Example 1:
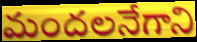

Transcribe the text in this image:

మందలనేగాని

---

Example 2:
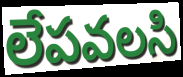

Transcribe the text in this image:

లేపవలసి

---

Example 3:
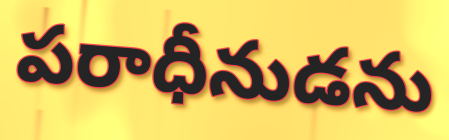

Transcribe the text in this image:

పరాధీనుడను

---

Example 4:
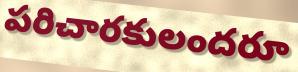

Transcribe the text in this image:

పరిచారకులందరూ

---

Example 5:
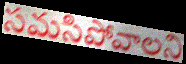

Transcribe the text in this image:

సమసిపోవాలని